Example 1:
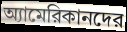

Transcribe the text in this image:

অ্যামেরিকানদের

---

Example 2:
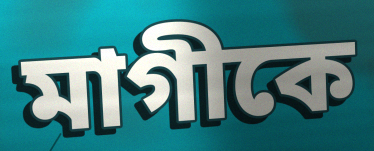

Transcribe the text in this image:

মাগীকে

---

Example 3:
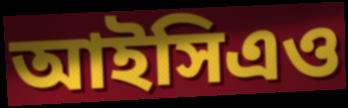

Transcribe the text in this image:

আইসিএও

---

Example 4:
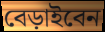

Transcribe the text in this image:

বেড়াইবেন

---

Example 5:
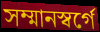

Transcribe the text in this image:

সম্মানস্বর্গে